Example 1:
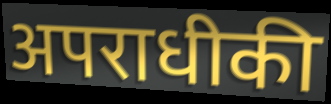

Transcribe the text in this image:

अपराधीकी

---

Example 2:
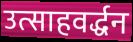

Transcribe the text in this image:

उत्साहवर्द्धन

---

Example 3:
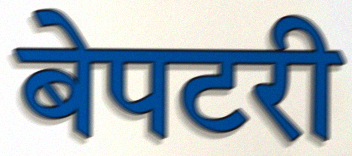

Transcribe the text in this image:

बेपटरी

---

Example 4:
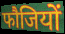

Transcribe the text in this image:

फौजियों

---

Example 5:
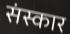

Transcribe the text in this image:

संस्‍कार